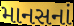
માનસનાં